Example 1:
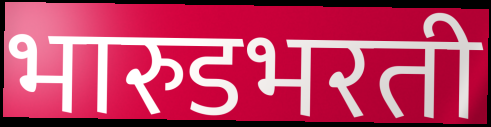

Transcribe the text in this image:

भारुडभरती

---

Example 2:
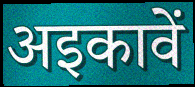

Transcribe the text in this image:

अइकावें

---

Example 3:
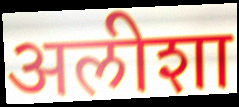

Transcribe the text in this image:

अलीशा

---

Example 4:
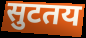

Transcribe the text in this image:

सुटतय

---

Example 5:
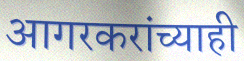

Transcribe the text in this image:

आगरकरांच्याही